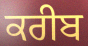
ਕਰੀਬ